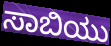
ಸಾಬಿಯು